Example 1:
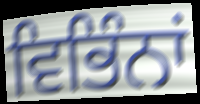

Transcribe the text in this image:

ਵਿਭਿੰਨਾਂ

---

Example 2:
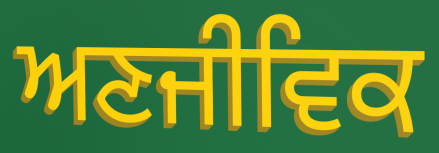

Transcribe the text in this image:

ਅਣਜੀਵਿਕ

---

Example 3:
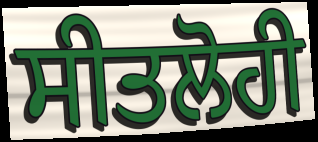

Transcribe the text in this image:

ਸੀਤਲੋਹੀ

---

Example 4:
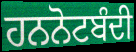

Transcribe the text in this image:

ਹਨਨੋਟਬੰਦੀ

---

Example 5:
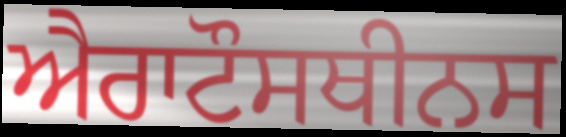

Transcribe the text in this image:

ਐਰਾਟੌਸਥੀਨਸ